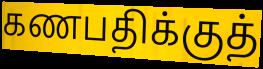
கணபதிக்குத்